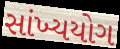
સાંખ્યયોગ